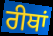
ਰੀਥਾਂ